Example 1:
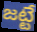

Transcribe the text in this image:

జట్టే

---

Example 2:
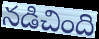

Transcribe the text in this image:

నడిచింది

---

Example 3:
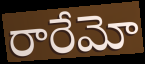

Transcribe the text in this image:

రారేమో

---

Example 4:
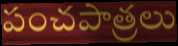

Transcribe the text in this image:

పంచపాత్రలు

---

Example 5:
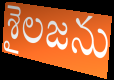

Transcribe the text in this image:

శైలజను